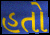
હતો